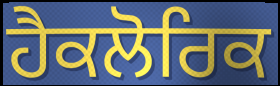
ਹੈਕਲੋਰਿਕ